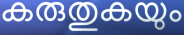
കരുതുകയും